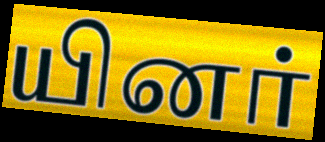
யினர்